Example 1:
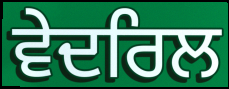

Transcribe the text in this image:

ਵੇਦਰਿਲ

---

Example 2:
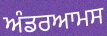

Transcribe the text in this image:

ਅੰਡਰਆਮਸ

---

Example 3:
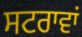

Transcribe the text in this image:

ਸਟਰਾਵਾਂ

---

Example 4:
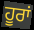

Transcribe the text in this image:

ਹੂਰਾਂ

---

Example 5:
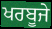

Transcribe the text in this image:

ਖਰਬੂਜੇ